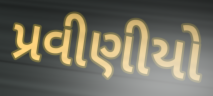
પ્રવીણીયો